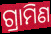
ଗ୍ରାମିଣ